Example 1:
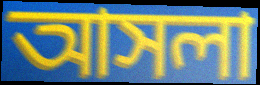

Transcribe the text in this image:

আসলা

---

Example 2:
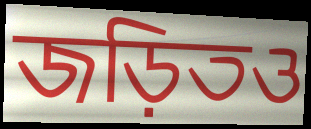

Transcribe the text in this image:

জড়িতও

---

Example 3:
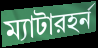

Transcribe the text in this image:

ম্যাটারহর্ন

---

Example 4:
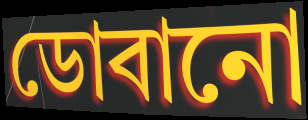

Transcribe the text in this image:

ডোবানো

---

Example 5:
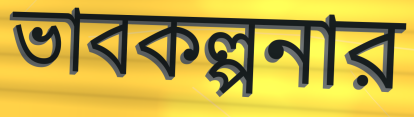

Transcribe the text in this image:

ভাবকল্পনার